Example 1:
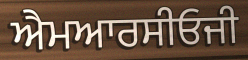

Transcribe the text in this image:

ਐਮਆਰਸੀਓਜੀ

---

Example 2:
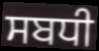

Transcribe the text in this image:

ਸਬਧੀ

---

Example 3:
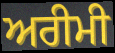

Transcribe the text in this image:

ਅਰੀਮੀ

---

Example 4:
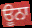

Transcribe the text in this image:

ਊਨਾ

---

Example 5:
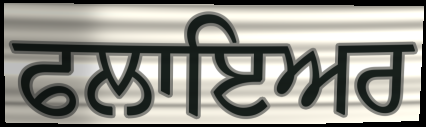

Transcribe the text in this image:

ਫਲਾਇਅਰ